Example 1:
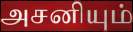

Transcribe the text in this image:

அசனியும்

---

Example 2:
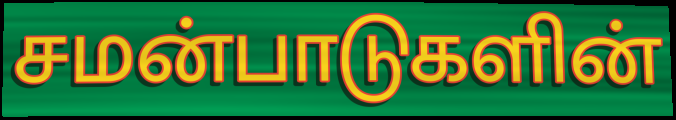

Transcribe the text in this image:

சமன்பாடுகளின்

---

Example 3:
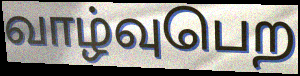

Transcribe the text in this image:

வாழ்வுபெற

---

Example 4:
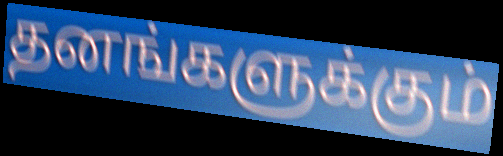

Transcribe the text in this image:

தனங்களுக்கும்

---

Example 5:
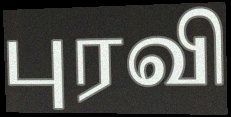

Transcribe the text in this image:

புரவி